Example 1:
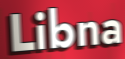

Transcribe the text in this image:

Libna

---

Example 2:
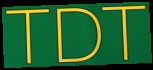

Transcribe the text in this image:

TDT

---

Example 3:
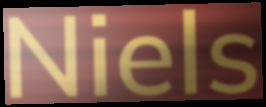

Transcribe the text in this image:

Niels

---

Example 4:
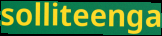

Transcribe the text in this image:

solliteenga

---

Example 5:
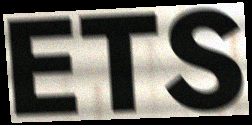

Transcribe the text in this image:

ETS